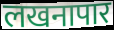
लखनापार